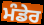
ਮੰਡੇਰ